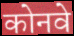
कोनवे